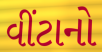
વીંટાનો